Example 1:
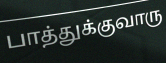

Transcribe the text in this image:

பாத்துக்குவாரு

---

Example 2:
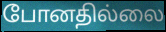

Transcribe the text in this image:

போனதில்லை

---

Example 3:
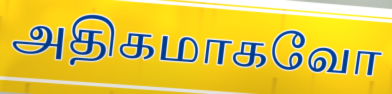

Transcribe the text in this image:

அதிகமாகவோ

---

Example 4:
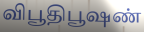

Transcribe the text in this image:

விபூதிபூஷண்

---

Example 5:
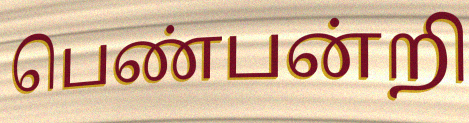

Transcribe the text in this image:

பெண்பன்றி